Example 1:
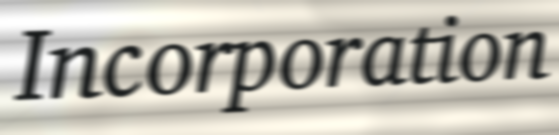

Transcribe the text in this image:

Incorporation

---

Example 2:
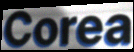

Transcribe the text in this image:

Corea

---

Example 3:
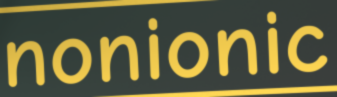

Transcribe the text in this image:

nonionic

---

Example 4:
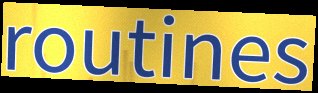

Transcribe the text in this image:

routines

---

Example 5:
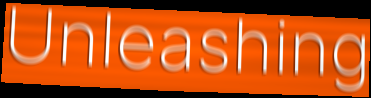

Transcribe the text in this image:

Unleashing